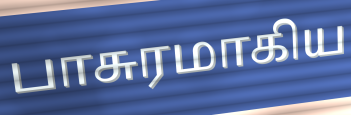
பாசுரமாகிய